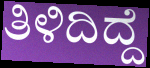
ತಿಳಿದಿದ್ದೆ